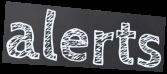
alerts